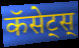
कॅसेट्स्